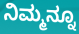
ನಿಮ್ಮನ್ನೂ